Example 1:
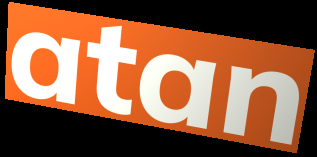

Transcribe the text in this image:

atan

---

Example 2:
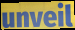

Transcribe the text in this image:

unveil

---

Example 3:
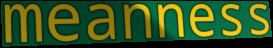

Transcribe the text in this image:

meanness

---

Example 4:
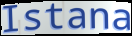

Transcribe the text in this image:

Istana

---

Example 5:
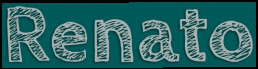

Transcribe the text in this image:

Renato